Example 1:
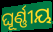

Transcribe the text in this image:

ଘୂର୍ଣ୍ଣୀୟ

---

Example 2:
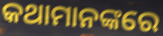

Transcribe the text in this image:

କଥାମାନଙ୍କରେ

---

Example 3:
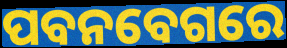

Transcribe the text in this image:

ପବନବେଗରେ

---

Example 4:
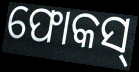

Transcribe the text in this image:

ଫୋକସ୍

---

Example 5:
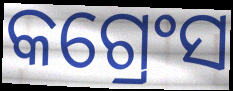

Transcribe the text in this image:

କଗ୍ରେଂସ